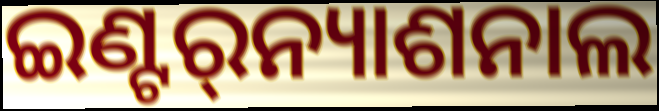
ଇଣ୍ଟର୍‌ନ୍ୟାଶନାଲ